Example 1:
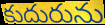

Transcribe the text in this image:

కుదురును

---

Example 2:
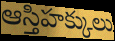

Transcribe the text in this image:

ఆస్తిహక్కులు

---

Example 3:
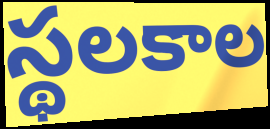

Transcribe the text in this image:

స్థలకాల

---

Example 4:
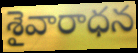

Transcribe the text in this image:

శైవారాధన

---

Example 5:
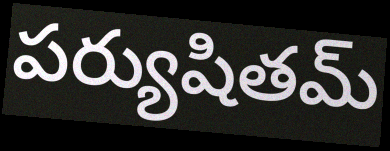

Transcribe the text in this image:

పర్యుషితమ్